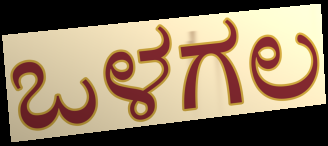
ಒಳಗಲ